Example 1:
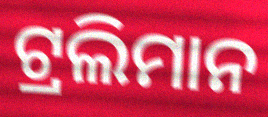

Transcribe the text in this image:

ଟ୍ରଲିମାନ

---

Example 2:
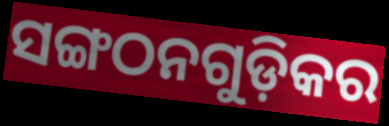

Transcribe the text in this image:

ସଙ୍ଗଠନଗୁଡ଼ିକର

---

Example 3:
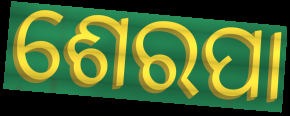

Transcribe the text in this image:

ଶେରପା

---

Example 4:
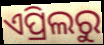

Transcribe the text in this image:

ଏପ୍ରିଲରୁ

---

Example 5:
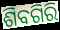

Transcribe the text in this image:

ଶିବଗିରି